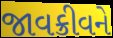
જાવક્રીવને